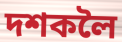
দশকলৈ